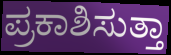
ಪ್ರಕಾಶಿಸುತ್ತಾ